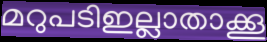
മറുപടിഇല്ലാതാക്കൂ